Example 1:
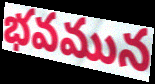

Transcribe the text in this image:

భవమున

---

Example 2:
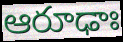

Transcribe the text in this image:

ఆరూఢాః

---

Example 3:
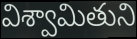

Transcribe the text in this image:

విశ్వామితుని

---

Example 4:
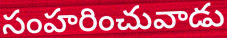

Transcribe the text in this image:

సంహరించువాడు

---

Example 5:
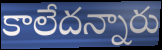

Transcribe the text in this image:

కాలేదన్నారు